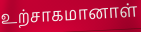
உற்சாகமானாள்